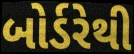
બોર્ડરેથી